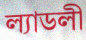
ল্যাডলী